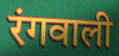
रंगवाली